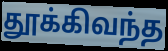
தூக்கிவந்த